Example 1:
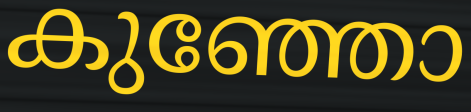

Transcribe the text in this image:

കുഞ്ഞോ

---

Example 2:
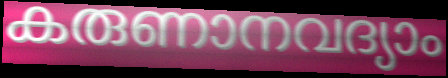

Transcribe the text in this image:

കരുണാനവദ്യാം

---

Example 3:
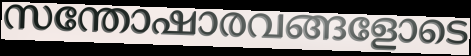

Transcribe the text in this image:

സന്തോഷാരവങ്ങളോടെ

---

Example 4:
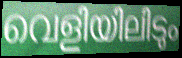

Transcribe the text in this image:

വെളിയിലിടും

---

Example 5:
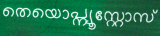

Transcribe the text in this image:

തെയൊപ്ന്യൂസ്റ്റോസ്